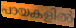
പായകളിൽ